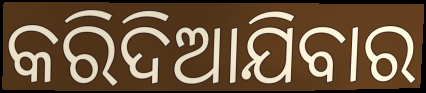
କରିଦିଆଯିବାର